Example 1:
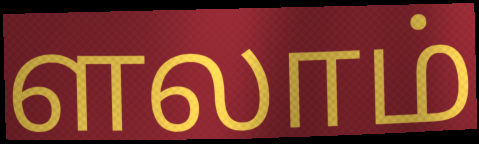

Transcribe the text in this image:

ளலாம்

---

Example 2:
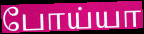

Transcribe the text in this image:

போய்யா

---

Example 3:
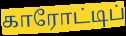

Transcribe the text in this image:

காரோட்டிப்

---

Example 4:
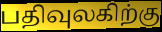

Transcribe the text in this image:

பதிவுலகிற்கு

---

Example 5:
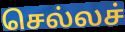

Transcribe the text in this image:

செல்லச்